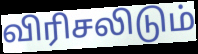
விரிசலிடும்